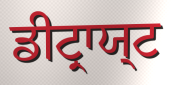
ਡੀਟ੍ਰਾਯ੍ਟ